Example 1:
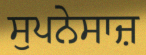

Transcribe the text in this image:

ਸੁਪਨੇਸਾਜ਼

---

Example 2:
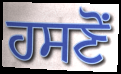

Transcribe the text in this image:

ਹਸਣੋਂ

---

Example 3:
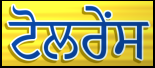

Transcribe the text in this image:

ਟੋਲਰੇਂਸ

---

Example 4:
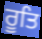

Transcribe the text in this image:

ਰੂਤਿ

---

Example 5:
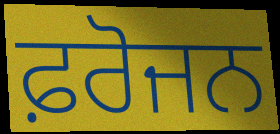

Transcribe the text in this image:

ਫ਼ਰੋਜਨ